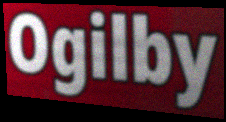
Ogilby